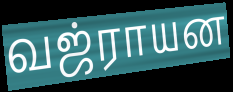
வஜ்ராயன